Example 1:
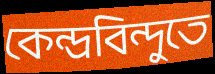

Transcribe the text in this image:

কেন্দ্রবিন্দুতে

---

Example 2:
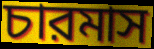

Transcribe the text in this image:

চারমাস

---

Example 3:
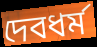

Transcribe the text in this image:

দেবধর্ম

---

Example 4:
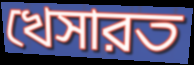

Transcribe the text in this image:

খেসারত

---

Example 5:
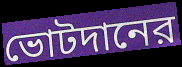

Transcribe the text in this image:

ভোটদানের